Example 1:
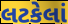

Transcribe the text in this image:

લટકેલાં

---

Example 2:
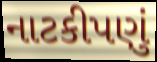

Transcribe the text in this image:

નાટકીપણું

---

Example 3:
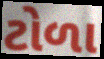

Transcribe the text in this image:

ટોળા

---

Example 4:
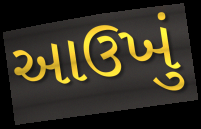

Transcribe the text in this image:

આઉખું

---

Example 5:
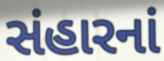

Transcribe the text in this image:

સંહારનાં